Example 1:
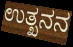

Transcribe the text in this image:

ಉತ್ಖನನ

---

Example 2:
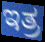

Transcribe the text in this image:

ಇತ್ರ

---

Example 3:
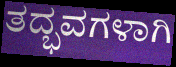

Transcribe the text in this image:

ತದ್ಭವಗಳಾಗಿ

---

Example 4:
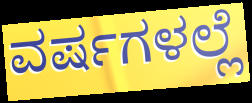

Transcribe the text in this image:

ವರ್ಷಗಳಲ್ಲೆ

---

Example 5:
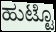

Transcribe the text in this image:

ಹುಟ್ಟೊ